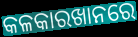
କଳକାରଖାନରେ